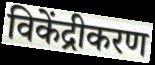
विकेंद्रीकरण